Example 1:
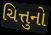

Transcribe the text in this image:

ચિત્તુનો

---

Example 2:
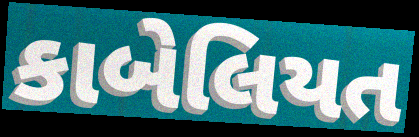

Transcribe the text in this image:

કાબેલિયત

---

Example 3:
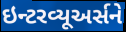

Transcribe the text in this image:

ઇન્ટરવ્યૂઅર્સને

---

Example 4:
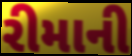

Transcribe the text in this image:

રીમાની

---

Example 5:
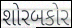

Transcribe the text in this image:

શોરબકોર